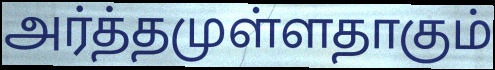
அர்த்தமுள்ளதாகும்